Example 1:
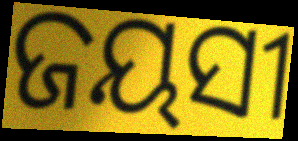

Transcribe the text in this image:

ଜୟସୀ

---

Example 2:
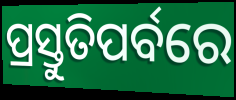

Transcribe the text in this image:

ପ୍ରସ୍ତୁତିପର୍ବରେ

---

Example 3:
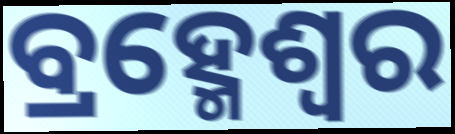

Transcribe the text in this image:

ବ୍ରହ୍ମେଶ୍ଵର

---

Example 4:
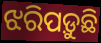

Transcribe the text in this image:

ଝରିପଡ଼ୁଛି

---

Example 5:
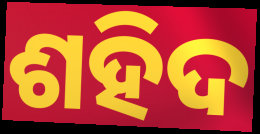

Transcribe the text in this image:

ଶହିଦ